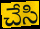
చేసి